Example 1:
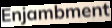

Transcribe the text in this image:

Enjambment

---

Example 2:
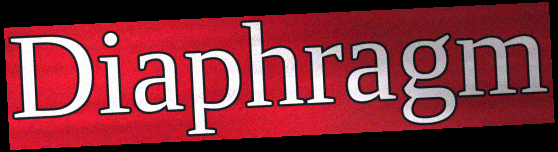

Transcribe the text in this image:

Diaphragm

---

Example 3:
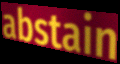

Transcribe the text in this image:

abstain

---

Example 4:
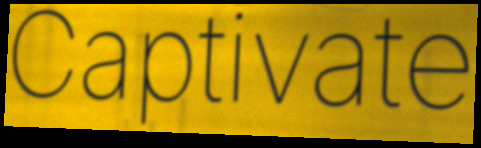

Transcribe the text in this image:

Captivate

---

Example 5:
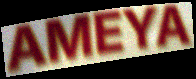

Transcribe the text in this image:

AMEYA